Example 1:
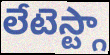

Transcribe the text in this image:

లేటెస్ట్గా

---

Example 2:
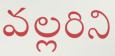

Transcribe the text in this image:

వల్లరిని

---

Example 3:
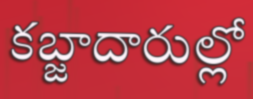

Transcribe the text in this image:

కబ్జాదారుల్లో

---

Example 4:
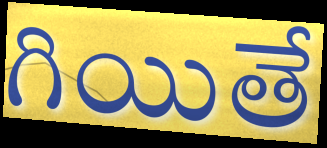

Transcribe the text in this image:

గియితే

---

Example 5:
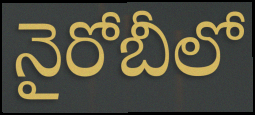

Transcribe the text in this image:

నైరోబీలో